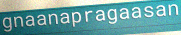
gnaanapragaasan